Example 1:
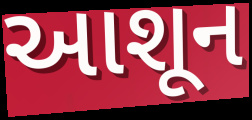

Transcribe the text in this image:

આશૂન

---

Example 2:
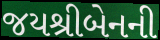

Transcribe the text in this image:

જયશ્રીબેનની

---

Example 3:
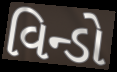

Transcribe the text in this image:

વિન્ડો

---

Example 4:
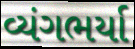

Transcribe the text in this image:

વ્યંગભર્યા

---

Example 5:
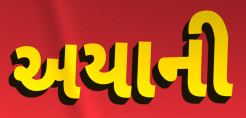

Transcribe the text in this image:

અયાની